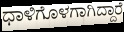
ಧಾಳಿಗೊಳಗಾಗಿದ್ದಾರೆ